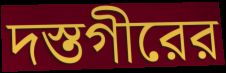
দস্তগীরের